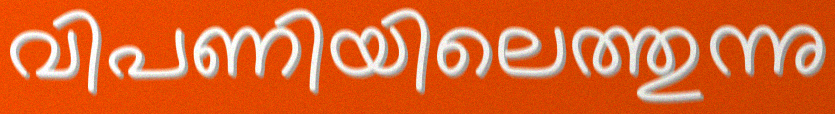
വിപണിയിലെത്തുന്നു